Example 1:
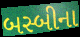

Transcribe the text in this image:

બસ્બીના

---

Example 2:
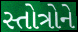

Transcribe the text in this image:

સ્તોત્રોને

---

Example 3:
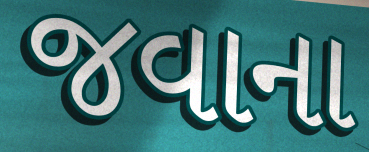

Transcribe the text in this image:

જવાના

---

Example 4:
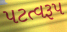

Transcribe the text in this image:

પટત્વરૂપ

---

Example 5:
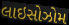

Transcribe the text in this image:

લાઇસોઝોમ